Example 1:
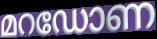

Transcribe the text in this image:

മറഡോണ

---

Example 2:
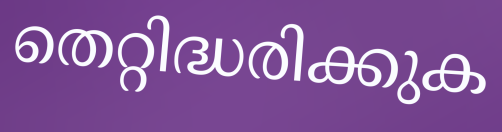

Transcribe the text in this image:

തെറ്റിദ്ധരിക്കുക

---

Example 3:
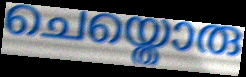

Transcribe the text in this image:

ചെയ്തൊരു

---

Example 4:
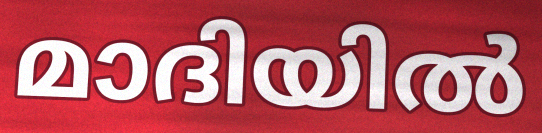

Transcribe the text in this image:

മാദിയിൽ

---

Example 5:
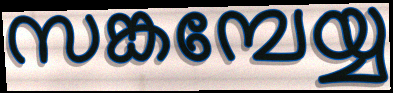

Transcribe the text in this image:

സങ്കമ്പേയ്യ